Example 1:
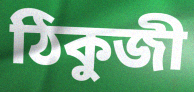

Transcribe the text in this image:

ঠিকুজী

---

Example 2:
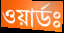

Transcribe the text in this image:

ওয়ার্ডঃ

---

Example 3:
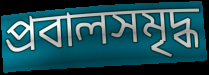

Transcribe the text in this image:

প্রবালসমৃদ্ধ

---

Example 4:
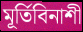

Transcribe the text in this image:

মূর্তিবিনাশী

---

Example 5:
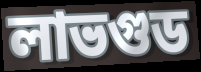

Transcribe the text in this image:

লাভগুড